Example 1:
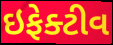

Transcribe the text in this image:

ઇફેક્ટીવ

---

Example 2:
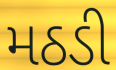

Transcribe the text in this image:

મઠડી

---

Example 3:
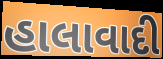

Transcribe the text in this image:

હાલાવાદી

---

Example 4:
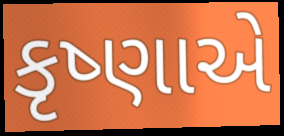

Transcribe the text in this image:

કૃષ્ણાએ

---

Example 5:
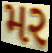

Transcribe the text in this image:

મર